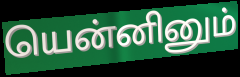
யென்னினும்